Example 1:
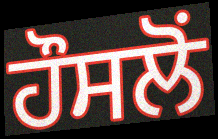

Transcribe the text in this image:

ਹੌਸਲੋਂ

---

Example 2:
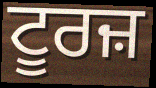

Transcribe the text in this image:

ਟੂਰਜ਼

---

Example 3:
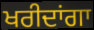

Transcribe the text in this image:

ਖਰੀਦਾਂਗਾ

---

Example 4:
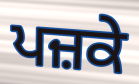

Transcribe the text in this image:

ਪਜ਼ਕੇ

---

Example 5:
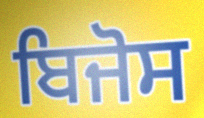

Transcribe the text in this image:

ਬਿਜੋਸ